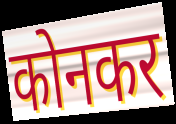
कोनकर